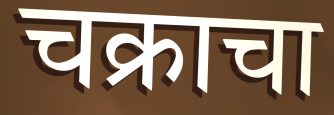
चक्राचा